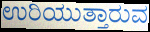
ಉರಿಯುತ್ತಾರುವ